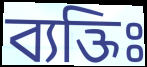
ব্যক্তিঃ